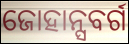
ଜୋହାନ୍ସବର୍ଗ